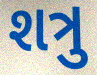
શત્રુ